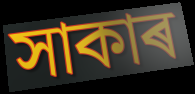
সাকাৰ